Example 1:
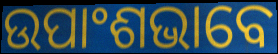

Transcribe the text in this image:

ଉପାଂଶଭାବେ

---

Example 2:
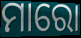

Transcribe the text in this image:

ମାରୋ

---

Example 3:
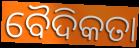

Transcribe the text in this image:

ବୈଦିକତା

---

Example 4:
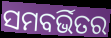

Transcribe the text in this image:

ସମବର୍ଭିତର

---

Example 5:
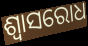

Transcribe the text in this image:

ଶ୍ୱାସରୋଧ